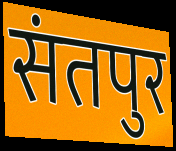
संतपुर